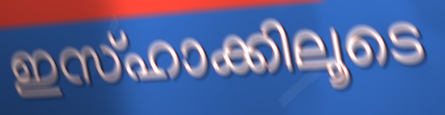
ഇസ്ഹാക്കിലൂടെ